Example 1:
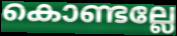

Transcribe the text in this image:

കൊണ്ടല്ലേ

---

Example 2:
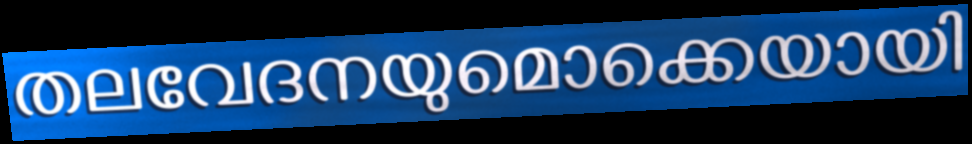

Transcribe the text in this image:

തലവേദനയുമൊക്കെയായി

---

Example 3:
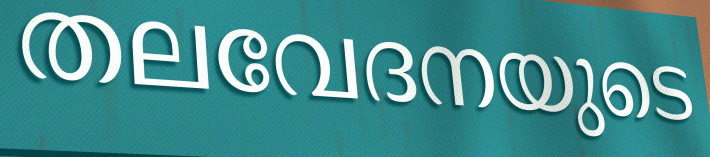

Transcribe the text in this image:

തലവേദനയുടെ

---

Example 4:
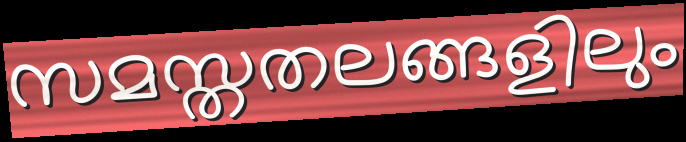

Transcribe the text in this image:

സമസ്തതലങ്ങളിലും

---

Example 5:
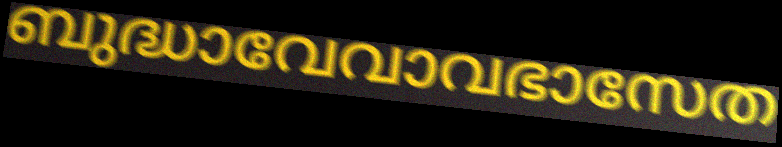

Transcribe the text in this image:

ബുദ്ധാവേവാവഭാസേത